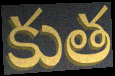
కుత